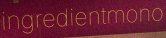
ingredientmono